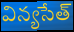
విన్యసేత్